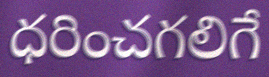
ధరించగలిగే